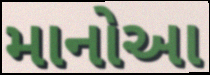
માનોઆ